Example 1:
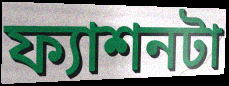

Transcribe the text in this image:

ফ্যাশনটা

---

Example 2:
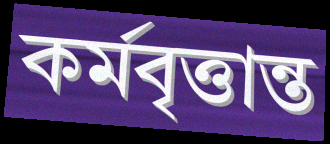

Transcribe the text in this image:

কর্মবৃত্তান্ত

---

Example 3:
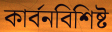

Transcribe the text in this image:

কার্বনবিশিষ্ট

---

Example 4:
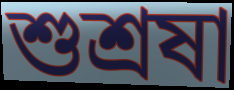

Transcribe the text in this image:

শুশ্রষা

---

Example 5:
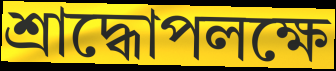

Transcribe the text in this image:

শ্রাদ্ধোপলক্ষে